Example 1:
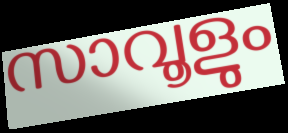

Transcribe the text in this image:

സാവൂളും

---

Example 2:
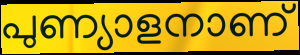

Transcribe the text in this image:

പുണ്യാളനാണ്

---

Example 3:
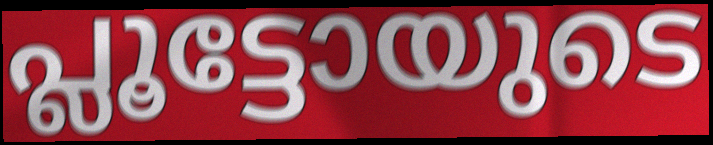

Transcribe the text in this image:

പ്ലൂട്ടോയുടെ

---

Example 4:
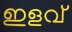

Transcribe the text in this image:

ഇളവ്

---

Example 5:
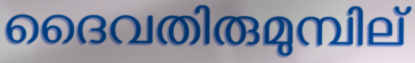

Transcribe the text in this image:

ദൈവതിരുമുമ്പില്